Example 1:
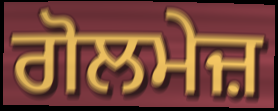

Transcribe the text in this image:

ਗੋਲਮੇਜ਼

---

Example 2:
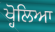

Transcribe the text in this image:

ਖ੍ਹੋਲਿਆ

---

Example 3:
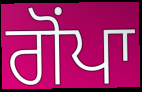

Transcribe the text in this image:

ਗੋਂਪਾ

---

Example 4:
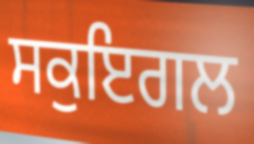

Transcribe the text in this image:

ਸਕੁਇਗਲ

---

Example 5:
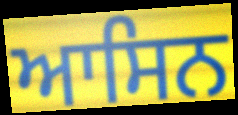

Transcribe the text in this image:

ਆਸਿਨ